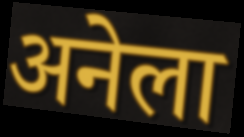
अनेला